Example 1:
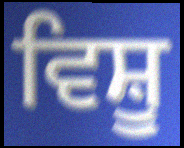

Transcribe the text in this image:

ਵਿਸ਼ੂ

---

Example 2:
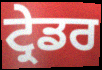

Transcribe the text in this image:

ਟ੍ਰੇਡਰ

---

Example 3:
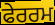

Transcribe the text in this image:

ਫੇਰਰਮ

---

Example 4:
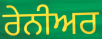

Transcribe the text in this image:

ਰੇਨੀਅਰ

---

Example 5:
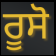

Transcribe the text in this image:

ਰੂਸੋ